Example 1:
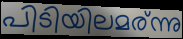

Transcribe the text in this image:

പിടിയിലമര്ന്നു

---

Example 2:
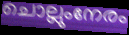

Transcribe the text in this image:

ചൊല്ലുംനേരം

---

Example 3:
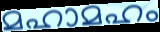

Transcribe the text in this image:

മഹാമഹം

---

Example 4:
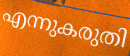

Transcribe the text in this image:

എന്നുകരുതി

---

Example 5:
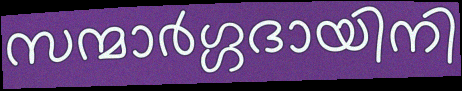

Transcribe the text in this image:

സന്മാർഗ്ഗദായിനി